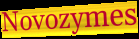
Novozymes